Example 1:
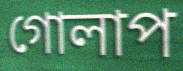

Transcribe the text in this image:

গোলাপ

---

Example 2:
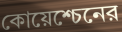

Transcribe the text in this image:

কোয়েশ্চেনের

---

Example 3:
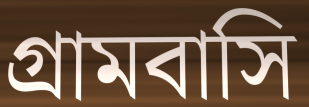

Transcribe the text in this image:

গ্রামবাসি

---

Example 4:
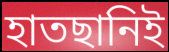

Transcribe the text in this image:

হাতছানিই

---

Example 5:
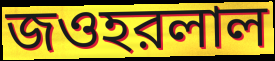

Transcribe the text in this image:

জওহরলাল